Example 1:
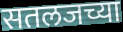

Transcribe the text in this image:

सतलजच्या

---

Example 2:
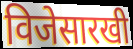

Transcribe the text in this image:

विजेसारखी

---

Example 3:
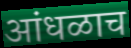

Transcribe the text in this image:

आंधळाच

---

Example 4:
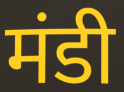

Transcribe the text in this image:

मंडी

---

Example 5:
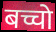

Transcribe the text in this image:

बच्चो